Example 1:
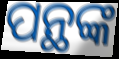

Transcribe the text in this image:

ପନ୍ଥଙ୍କ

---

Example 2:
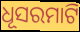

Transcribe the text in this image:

ଧୂସରମାଟି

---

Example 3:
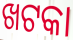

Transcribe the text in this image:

ଖଟକା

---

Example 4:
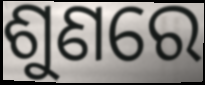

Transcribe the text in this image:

ଶୁଣରେ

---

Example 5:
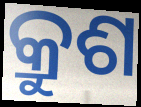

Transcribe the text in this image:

କ୍ରୁଶ